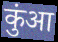
कुंआ